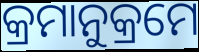
କ୍ରମାନୁକ୍ରମେ